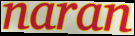
naran